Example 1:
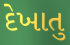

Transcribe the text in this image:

દેખાતુ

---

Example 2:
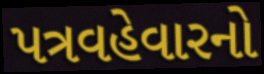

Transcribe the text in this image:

પત્રવહેવારનો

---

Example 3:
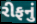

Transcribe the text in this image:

રીફનું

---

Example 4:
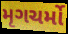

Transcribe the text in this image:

મૃગચર્મો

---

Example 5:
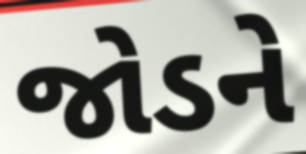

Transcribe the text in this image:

જોડને